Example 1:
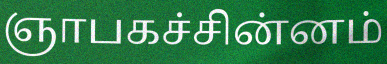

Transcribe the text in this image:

ஞாபகச்சின்னம்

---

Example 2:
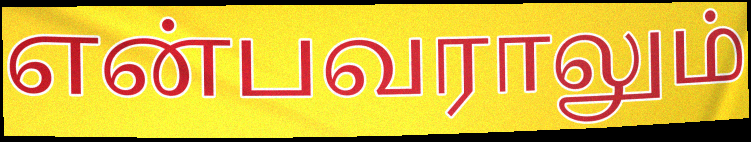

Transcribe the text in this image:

என்பவராலும்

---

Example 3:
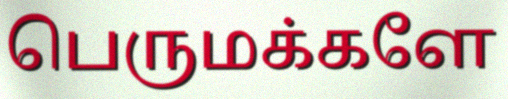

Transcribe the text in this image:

பெருமக்களே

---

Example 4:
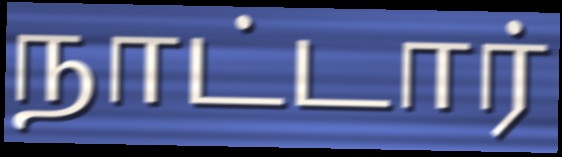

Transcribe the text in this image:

நாட்டார்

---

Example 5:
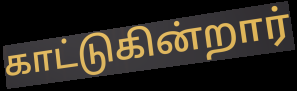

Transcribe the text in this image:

காட்டுகின்றார்